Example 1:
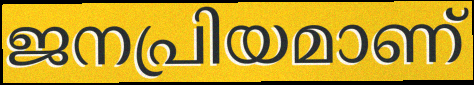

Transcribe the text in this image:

ജനപ്രിയമാണ്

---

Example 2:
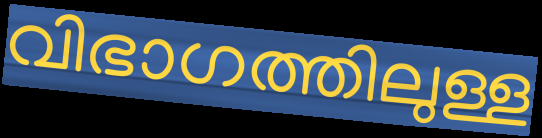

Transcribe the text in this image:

വിഭാഗത്തിലുള്ള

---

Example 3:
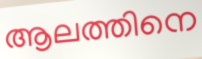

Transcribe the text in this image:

ആലത്തിനെ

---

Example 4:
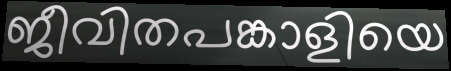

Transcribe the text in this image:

ജീവിതപങ്കാളിയെ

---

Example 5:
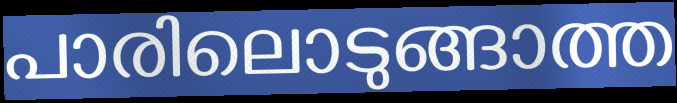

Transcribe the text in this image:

പാരിലൊടുങ്ങാത്ത